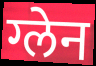
ग्लेन